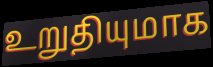
உறுதியுமாக